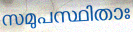
സമുപസ്ഥിതാഃ